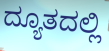
ದ್ಯೂತದಲ್ಲಿ